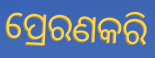
ପ୍ରେରଣକରି